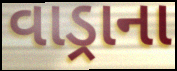
વાડ્રાના